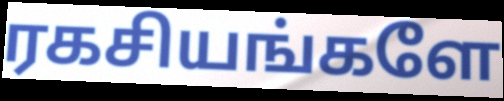
ரகசியங்களே